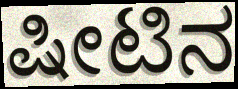
ಷೀಟಿನ